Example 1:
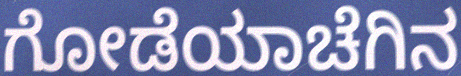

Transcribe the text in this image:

ಗೋಡೆಯಾಚೆಗಿನ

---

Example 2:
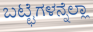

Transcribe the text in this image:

ಬಟ್ಟೆಗಳನ್ನೆಲ್ಲಾ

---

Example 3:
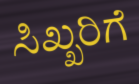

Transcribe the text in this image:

ಸಿಖ್ಖರಿಗೆ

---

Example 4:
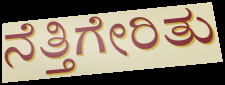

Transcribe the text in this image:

ನೆತ್ತಿಗೇರಿತು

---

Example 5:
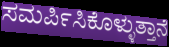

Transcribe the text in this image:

ಸಮರ್ಪಿಸಿಕೊಳ್ಳುತ್ತಾನೆ